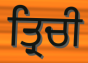
ਤ੍ਰਿਚੀ